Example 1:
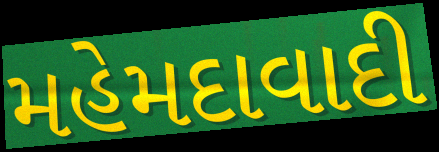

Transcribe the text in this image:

મહેમદાવાદી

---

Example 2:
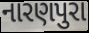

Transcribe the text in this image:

નારણપુરા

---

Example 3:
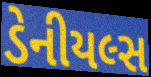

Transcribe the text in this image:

ડેનીયલ્સ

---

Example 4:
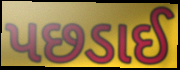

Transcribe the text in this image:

પછડાઈ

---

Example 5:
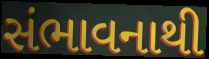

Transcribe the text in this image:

સંભાવનાથી